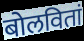
बोलवितां